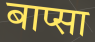
बाप्सा